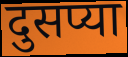
दुसप्या